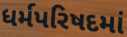
ધર્મપરિષદમાં